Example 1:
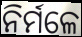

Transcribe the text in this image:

ନିର୍ମଳେ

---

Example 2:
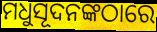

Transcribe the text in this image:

ମଧୁସୂଦନଙ୍କଠାରେ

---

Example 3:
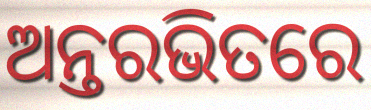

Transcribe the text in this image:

ଅନ୍ତରଭିତରେ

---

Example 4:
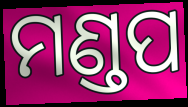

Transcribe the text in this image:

ମଣ୍ଡପ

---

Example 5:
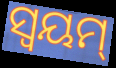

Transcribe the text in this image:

ସ୍ୱୟମ୍